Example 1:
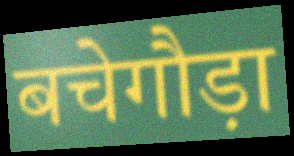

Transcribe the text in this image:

बचेगौड़ा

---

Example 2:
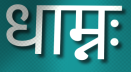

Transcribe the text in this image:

धाम्नः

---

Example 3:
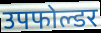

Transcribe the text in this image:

उपफोल्डर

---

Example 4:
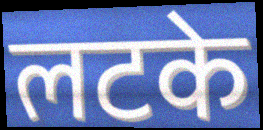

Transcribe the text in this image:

लटके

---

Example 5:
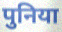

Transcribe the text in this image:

पुनिया